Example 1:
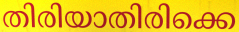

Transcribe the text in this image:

തിരിയാതിരിക്കെ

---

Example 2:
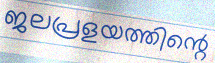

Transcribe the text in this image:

ജലപ്രളയത്തിന്റെ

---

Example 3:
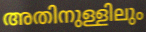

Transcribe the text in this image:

അതിനുള്ളിലും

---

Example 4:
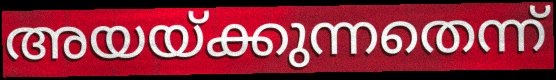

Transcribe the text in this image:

അയയ്ക്കുന്നതെന്ന്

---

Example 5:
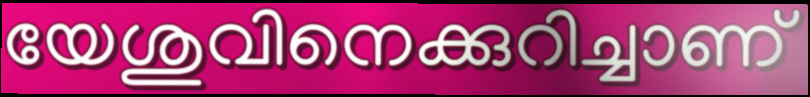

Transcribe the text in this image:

യേശുവിനെക്കുറിച്ചാണ്